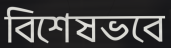
বিশেষভবে